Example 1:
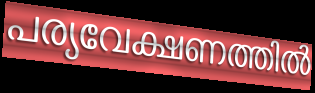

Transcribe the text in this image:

പര്യവേക്ഷണത്തിൽ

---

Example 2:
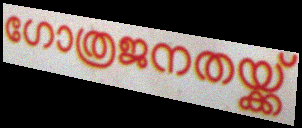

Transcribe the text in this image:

ഗോത്രജനതയ്ക്ക്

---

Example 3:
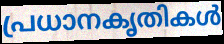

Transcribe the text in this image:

പ്രധാനകൃതികൾ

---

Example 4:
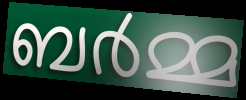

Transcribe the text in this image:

ബർമ്മ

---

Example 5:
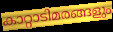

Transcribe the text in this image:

കാറ്റാടിമരങ്ങളും